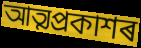
আত্মপ্ৰকাশৰ